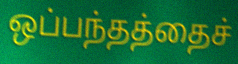
ஒப்பந்தத்தைச்